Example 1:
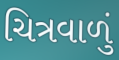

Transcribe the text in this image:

ચિત્રવાળું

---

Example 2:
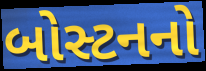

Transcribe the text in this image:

બોસ્ટનનો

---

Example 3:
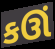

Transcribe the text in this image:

કઊં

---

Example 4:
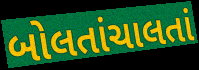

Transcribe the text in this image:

બોલતાંચાલતાં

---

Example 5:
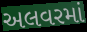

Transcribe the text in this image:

અલવરમાં